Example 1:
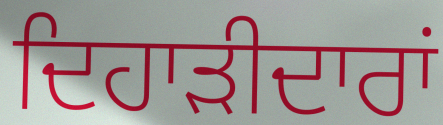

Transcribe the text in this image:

ਦਿਹਾੜੀਦਾਰਾਂ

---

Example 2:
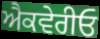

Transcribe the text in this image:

ਐਕਵੇਰੀਓ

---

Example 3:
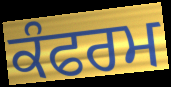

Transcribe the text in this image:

ਕੰਫਰਮ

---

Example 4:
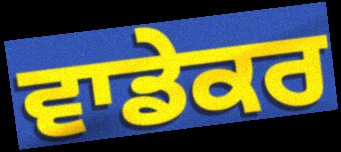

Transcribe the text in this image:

ਵਾਡੇਕਰ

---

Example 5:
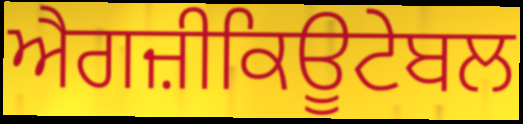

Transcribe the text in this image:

ਐਗਜ਼ੀਕਿਊਟੇਬਲ